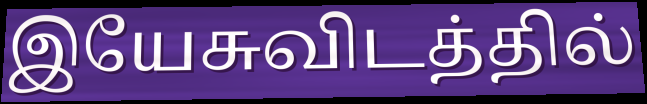
இயேசுவிடத்தில்